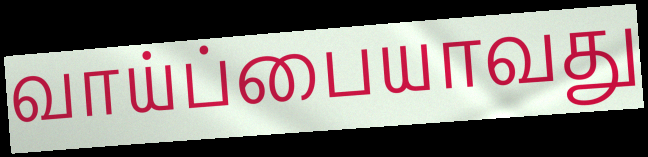
வாய்ப்பையாவது